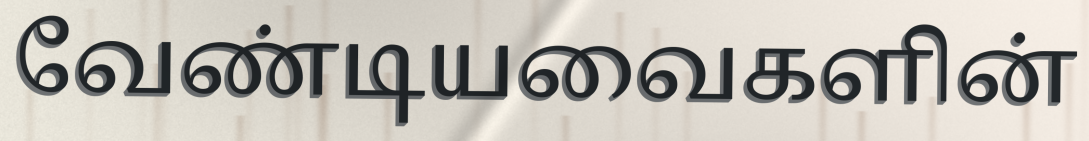
வேண்டியவைகளின்